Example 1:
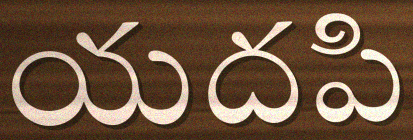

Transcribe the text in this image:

యదపి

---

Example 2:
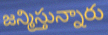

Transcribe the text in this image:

జన్మిస్తున్నారు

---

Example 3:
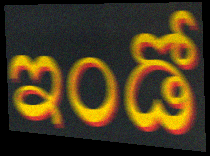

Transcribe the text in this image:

ఇండో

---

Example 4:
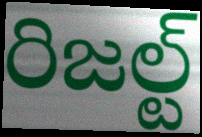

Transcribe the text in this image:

రిజల్ట్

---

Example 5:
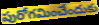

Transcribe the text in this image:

పురోగమించేందుకు